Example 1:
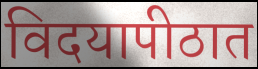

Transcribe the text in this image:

विदयापीठात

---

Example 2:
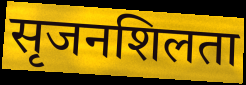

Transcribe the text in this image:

सृजनशिलता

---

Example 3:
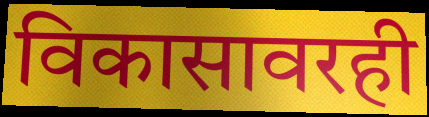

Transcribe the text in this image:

विकासावरही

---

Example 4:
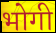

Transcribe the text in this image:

भोगी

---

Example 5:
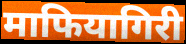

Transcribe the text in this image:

माफियागिरी